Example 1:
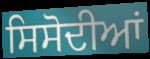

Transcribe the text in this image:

ਸਿਸੋਦੀਆਂ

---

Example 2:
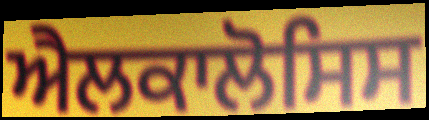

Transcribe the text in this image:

ਐਲਕਾਲੋਸਿਸ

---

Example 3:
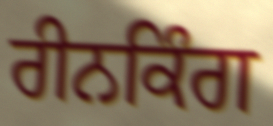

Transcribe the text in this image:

ਰੀਨਕਿੰਗ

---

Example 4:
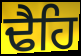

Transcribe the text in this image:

ਢੈਹਿ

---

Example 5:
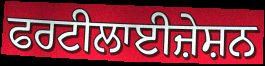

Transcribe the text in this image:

ਫਰਟੀਲਾਈਜ਼ੇਸ਼ਨ